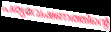
പര്യവേഷണത്തിന്റെ